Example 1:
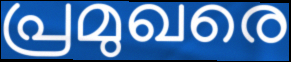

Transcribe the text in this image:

പ്രമുഖരെ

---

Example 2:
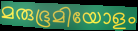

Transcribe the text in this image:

മരുഭൂമിയോളം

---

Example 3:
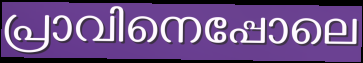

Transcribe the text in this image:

പ്രാവിനെപ്പോലെ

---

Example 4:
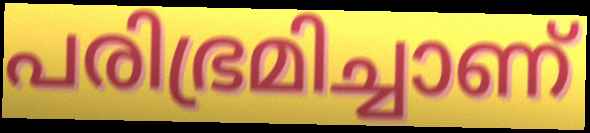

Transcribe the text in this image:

പരിഭ്രമിച്ചാണ്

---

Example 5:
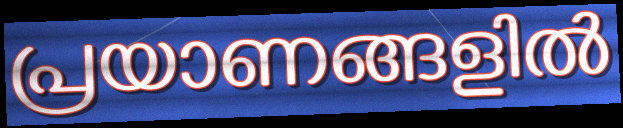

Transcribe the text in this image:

പ്രയാണങ്ങളിൽ